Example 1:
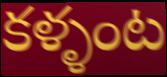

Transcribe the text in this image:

కళ్ళంట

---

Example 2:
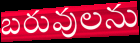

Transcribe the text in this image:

బరువులను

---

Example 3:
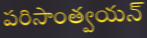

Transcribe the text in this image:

పరిసాంత్వయన్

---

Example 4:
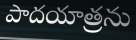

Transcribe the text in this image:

పాదయాత్రను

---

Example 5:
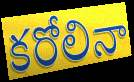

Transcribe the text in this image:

కరోలినా